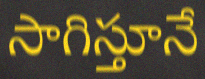
సాగిస్తూనే